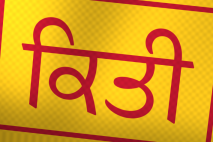
ਕਿਤੀ